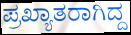
ಪ್ರಖ್ಯಾತರಾಗಿದ್ದ